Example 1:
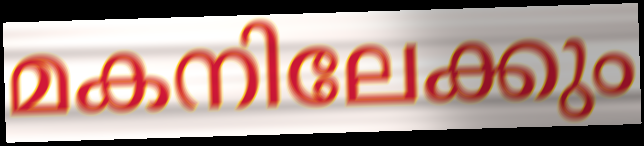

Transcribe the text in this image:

മകനിലേക്കും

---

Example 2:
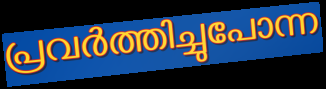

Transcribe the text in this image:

പ്രവർത്തിച്ചുപോന്ന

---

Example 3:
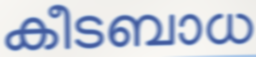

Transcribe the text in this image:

കീടബാധ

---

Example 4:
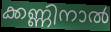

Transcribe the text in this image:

ക്കണ്ണിനാൽ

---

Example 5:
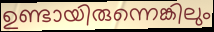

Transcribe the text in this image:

ഉണ്ടായിരുന്നെങ്കിലും